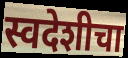
स्वदेशीचा